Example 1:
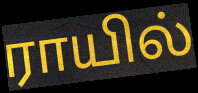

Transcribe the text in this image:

ராயில்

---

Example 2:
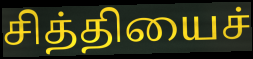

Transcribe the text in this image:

சித்தியைச்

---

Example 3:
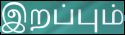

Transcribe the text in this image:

இறப்பும்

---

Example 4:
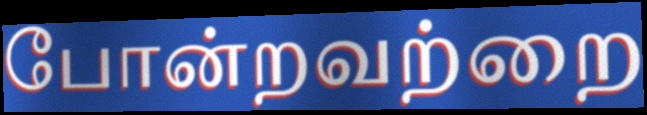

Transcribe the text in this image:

போன்றவற்றை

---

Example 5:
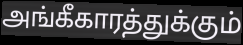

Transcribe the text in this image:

அங்கீகாரத்துக்கும்